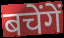
बचेंगें